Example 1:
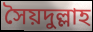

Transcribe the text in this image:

সৈয়দুল্লাহ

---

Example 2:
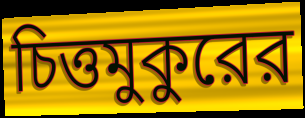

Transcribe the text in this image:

চিত্তমুকুরের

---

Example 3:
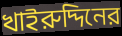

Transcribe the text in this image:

খাইরুদ্দিনের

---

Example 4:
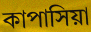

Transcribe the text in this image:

কাপাসিয়া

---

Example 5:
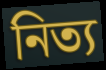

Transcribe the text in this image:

নিত্য